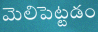
మెలిపెట్టడం